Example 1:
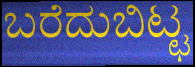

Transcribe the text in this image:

ಬರೆದುಬಿಟ್ಟ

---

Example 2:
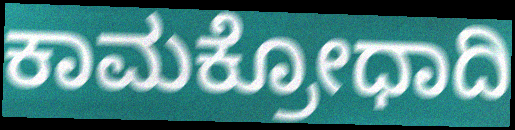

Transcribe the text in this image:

ಕಾಮಕ್ರೋಧಾದಿ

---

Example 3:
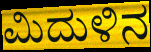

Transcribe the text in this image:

ಮಿದುಳಿನ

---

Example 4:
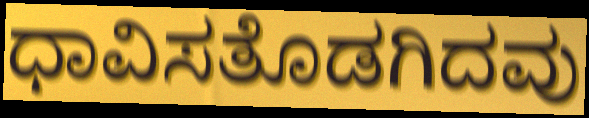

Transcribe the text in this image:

ಧಾವಿಸತೊಡಗಿದವು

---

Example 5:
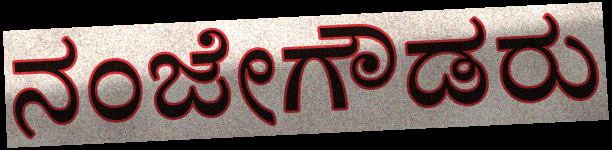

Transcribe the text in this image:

ನಂಜೇಗೌಡರು